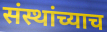
संस्थांच्याच